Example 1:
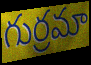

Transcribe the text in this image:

గుర్రమా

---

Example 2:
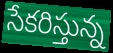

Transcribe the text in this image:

సేకరిస్తున్న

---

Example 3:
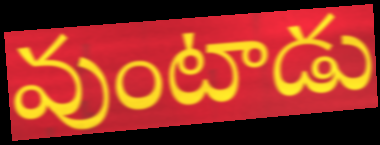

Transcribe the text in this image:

వుంటాడు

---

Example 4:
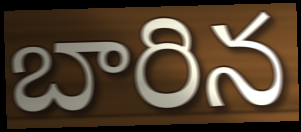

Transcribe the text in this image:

బారిన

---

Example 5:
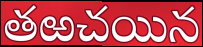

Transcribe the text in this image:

తఱచయిన